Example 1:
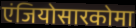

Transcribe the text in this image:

एंजियोसारकोमा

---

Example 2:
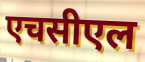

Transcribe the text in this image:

एचसीएल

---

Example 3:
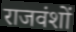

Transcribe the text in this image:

राजवंशों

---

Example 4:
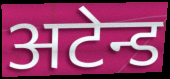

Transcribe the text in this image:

अटेन्ड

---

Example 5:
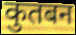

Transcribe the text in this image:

कुतबन